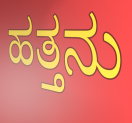
ಹತ್ತನು